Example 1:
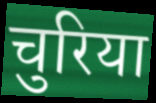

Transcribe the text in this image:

चुरिया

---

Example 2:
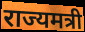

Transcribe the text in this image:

राज्यमत्री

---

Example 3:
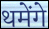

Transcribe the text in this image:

थमेंगे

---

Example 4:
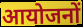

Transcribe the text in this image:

आयोजनों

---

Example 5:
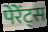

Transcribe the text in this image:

पेरेंट्स